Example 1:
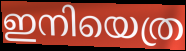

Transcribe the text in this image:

ഇനിയെത്ര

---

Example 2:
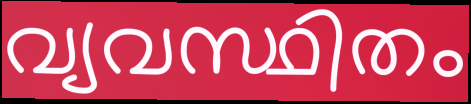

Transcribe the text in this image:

വ്യവസ്ഥിതം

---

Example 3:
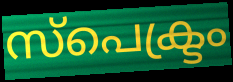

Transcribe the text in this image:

സ്പെക്ട്രം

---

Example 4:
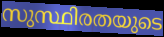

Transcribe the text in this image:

സുസ്ഥിരതയുടെ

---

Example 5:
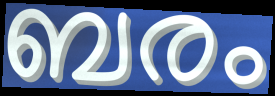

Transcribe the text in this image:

ബരം